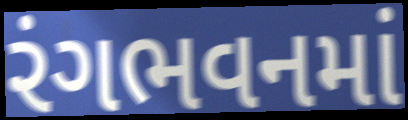
રંગભવનમાં